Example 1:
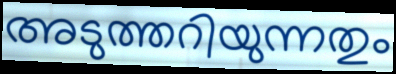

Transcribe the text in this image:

അടുത്തറിയുന്നതും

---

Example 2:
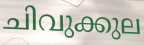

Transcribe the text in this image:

ചിവുക്കുല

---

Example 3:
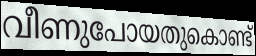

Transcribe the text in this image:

വീണുപോയതുകൊണ്ട്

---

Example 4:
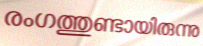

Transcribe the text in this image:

രംഗത്തുണ്ടായിരുന്നു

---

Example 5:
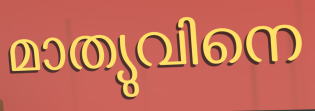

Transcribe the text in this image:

മാത്യുവിനെ